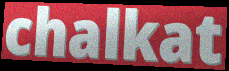
chalkat